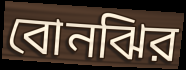
বোনঝির